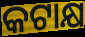
କଟାକ୍ଷ